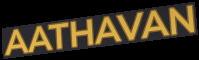
AATHAVAN